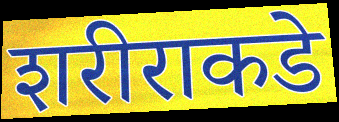
शरीराकडे